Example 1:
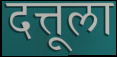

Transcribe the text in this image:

दत्तूला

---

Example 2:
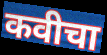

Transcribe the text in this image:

कवीचा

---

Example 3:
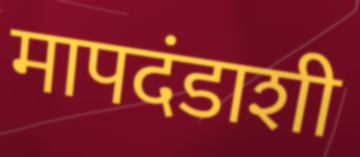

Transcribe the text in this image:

मापदंडाशी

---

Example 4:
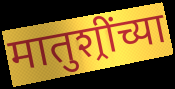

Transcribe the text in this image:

मातुश्रींच्या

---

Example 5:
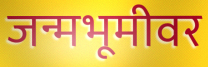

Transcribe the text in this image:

जन्मभूमीवर